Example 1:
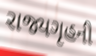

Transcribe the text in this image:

રાજ્યગૃહની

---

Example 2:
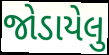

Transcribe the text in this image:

જોડાયેલુ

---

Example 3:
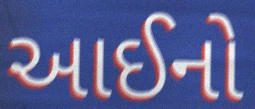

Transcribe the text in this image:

આઈનો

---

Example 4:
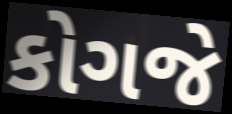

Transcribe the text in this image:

કોગજે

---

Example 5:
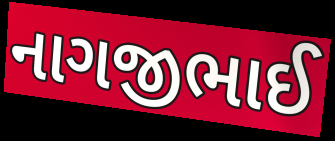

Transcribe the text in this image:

નાગજીભાઈ